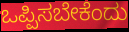
ಒಪ್ಪಿಸಬೇಕೆಂದು